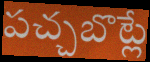
పచ్చబొట్లే